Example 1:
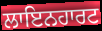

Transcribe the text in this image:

ਲਾਇਨਹਾਰਟ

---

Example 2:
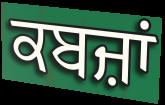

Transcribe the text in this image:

ਕਬਜ਼ਾਂ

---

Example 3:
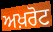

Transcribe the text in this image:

ਅਖ਼ਰੋਟ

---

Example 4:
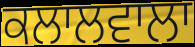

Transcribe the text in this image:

ਕਲਾਲਵਾਲਾ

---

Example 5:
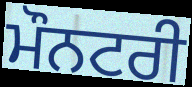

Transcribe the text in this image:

ਮੌਨਟਰੀ